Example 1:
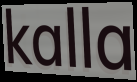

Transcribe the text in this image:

kalla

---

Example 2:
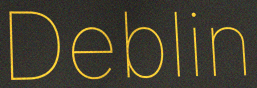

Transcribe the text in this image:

Deblin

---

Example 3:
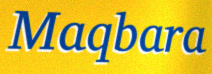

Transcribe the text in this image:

Maqbara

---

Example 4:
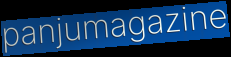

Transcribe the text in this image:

panjumagazine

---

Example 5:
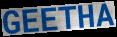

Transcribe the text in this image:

GEETHA